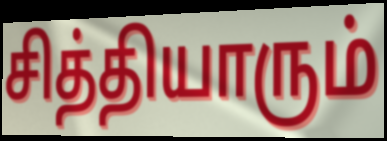
சித்தியாரும்